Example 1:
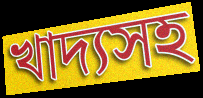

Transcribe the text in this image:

খাদ্যসহ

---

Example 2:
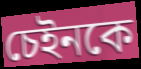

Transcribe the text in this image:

চেইনকে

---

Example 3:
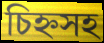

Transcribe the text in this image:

চিহ্নসহ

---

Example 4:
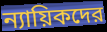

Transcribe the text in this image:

ন্যায়িকদের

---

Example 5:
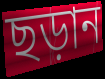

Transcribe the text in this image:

ছড়ান